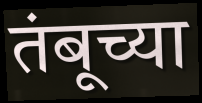
तंबूच्या